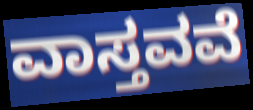
ವಾಸ್ತವವೆ